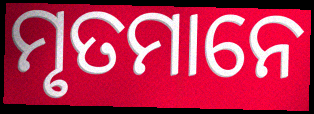
ମୃତମାନେ